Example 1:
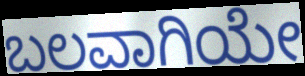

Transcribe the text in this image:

ಬಲವಾಗಿಯೇ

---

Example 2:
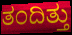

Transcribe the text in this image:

ತಂದಿತ್ತು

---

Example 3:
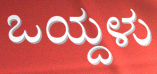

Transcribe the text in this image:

ಒಯ್ದಳು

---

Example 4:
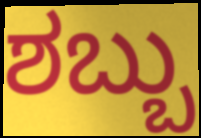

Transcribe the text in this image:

ಶಬ್ಬು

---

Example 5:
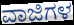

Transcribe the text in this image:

ವಾಜಿಗಳ